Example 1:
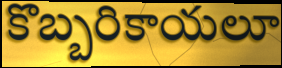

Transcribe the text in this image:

కొబ్బరికాయలూ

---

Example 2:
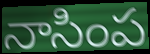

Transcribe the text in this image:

నాసింప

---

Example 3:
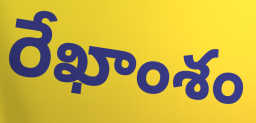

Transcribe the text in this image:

రేఖాంశం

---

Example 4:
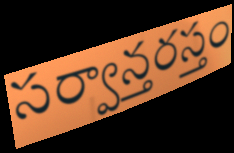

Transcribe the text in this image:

సర్వాన్తరస్తం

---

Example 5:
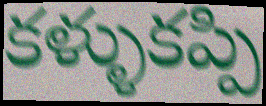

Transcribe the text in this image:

కళ్ళుకప్పి